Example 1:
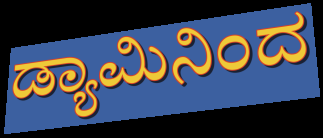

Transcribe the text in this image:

ಡ್ಯಾಮಿನಿಂದ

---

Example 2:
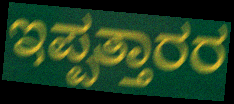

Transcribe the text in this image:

ಇಪ್ಪತ್ತಾರರ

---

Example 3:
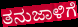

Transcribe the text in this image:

ತನುಜಾಳಿಗೆ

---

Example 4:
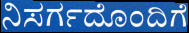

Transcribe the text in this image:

ನಿಸರ್ಗದೊಂದಿಗೆ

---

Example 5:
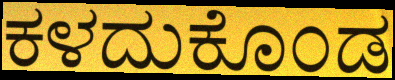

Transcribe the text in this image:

ಕಳದುಕೊಂಡ